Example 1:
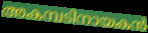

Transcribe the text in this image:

അകമ്പടിനായകൻ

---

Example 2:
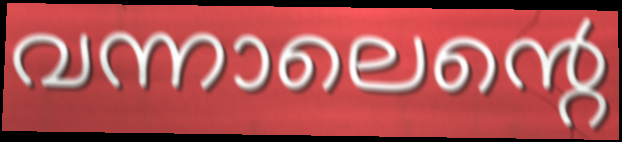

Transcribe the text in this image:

വന്നാലെന്റെ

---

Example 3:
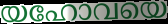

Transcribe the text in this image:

യഹോവയെ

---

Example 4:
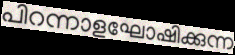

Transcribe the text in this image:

പിറന്നാളഘോഷിക്കുന്ന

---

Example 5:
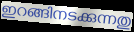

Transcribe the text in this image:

ഇറങ്ങിനടക്കുന്നതു